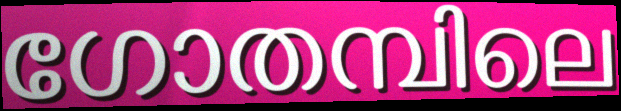
ഗോതമ്പിലെ